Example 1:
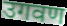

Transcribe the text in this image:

उगवण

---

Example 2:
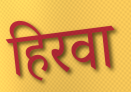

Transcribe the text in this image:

हिरवा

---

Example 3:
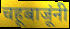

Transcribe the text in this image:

चहूबाजूंनी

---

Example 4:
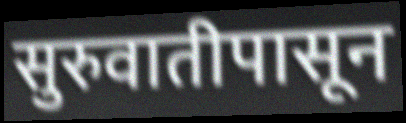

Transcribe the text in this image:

सुरुवातीपासून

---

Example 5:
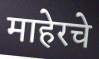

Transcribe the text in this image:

माहेरचे